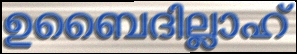
ഉബൈദില്ലാഹ്